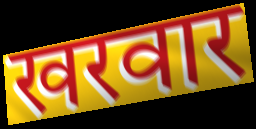
खरवार